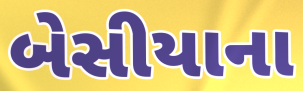
બેસીયાના